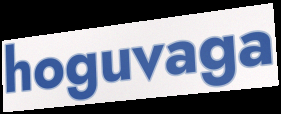
hoguvaga